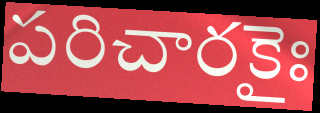
పరిచారకైః